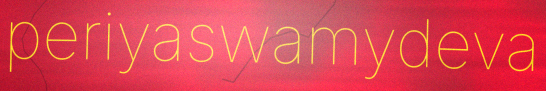
periyaswamydeva